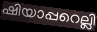
ഷിയാപ്പറെല്ലി